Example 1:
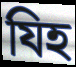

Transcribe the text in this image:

যিহ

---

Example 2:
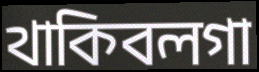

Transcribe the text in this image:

থাকিবলগা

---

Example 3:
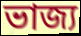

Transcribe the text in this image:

ভাজ্য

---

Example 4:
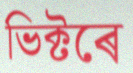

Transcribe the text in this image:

ভিক্টৰে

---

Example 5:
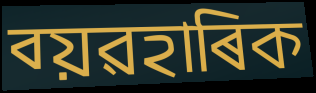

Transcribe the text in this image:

ব্য়ৱহাৰিক